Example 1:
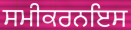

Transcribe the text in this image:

ਸਮੀਕਰਨਇਸ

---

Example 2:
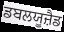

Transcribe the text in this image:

ਡਬਲਯੂਜ਼ੈਡ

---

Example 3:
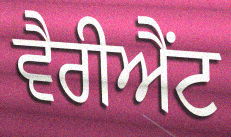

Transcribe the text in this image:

ਵੈਰੀਐਂਟ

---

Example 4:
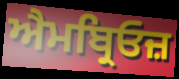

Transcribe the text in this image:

ਐਮਬ੍ਰਿਓਜ਼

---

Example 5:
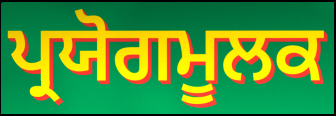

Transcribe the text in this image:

ਪ੍ਰਯੋਗਮੂਲਕ